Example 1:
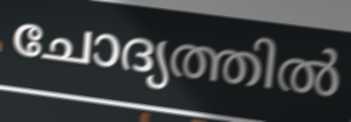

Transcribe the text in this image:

ചോദ്യത്തിൽ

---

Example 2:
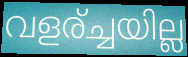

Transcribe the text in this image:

വളര്ച്ചയില്ല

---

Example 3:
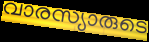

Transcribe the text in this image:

വാരസ്യാരുടെ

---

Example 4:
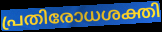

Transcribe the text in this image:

പ്രതിരോധശക്തി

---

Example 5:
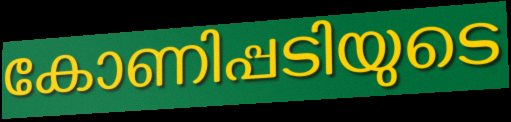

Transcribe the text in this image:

കോണിപ്പടിയുടെ